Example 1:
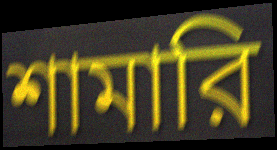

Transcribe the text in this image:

শামারি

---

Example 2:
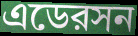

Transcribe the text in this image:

এডেরসন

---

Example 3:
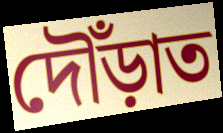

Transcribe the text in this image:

দৌঁড়াত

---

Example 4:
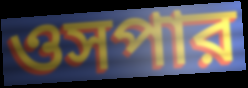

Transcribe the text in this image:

ওসপার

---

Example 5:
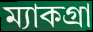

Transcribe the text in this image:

ম্যাকগ্রা